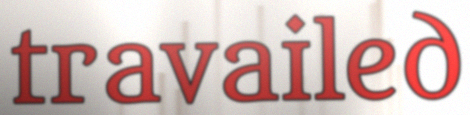
travailed